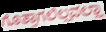
ಗೊತ್ತಾಗಲಿಲ್ಲವಲ್ಲಾ